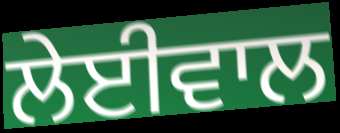
ਲੇਈਵਾਲ